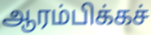
ஆரம்பிக்கச்